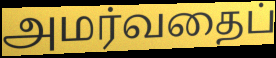
அமர்வதைப்